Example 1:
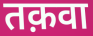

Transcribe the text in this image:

तक़वा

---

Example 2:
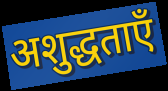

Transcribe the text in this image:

अशुद्धताएँ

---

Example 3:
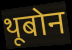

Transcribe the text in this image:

थूबोन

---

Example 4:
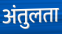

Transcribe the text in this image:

अंतुलता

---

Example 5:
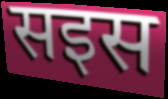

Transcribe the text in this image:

सइस